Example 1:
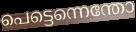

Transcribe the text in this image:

പെട്ടെന്നെന്തോ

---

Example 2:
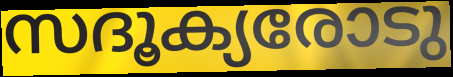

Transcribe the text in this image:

സദൂക്യരോടു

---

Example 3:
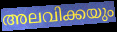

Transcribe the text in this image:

അലവിക്കയും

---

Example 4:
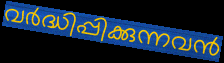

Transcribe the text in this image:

വർദ്ധിപ്പിക്കുന്നവൻ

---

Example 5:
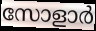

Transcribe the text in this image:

സോളാർ